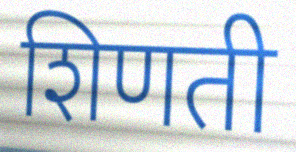
शिणती